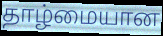
தாழ்மையான